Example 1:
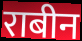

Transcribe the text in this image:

राबीन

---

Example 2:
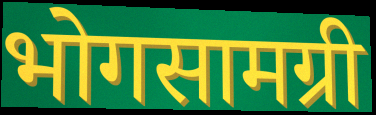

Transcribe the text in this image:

भोगसामग्री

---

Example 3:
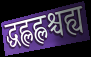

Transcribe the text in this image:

द्धह्लह्लश्चह्य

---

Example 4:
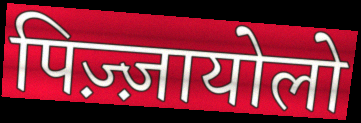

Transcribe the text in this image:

पिज़्ज़ायोलो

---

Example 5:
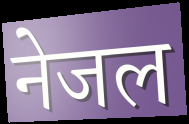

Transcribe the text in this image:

नेजल